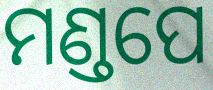
ମଣ୍ଡପେ